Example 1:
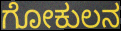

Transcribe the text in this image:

ಗೋಕುಲನ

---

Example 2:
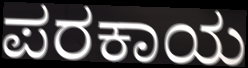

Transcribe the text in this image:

ಪರಕಾಯ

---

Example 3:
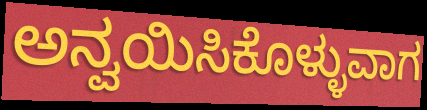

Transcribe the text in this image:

ಅನ್ವಯಿಸಿಕೊಳ್ಳುವಾಗ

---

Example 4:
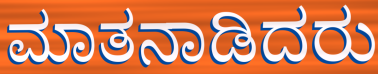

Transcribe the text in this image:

ಮಾತನಾಡಿದರು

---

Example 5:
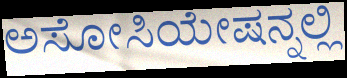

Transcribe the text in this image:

ಅಸೋಸಿಯೇಷನ್ನಲ್ಲಿ